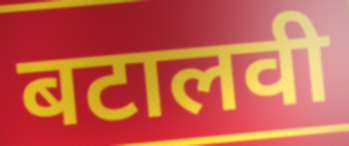
बटालवी